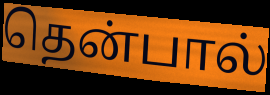
தென்பால்